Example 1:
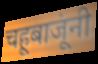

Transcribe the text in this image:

चहूबाजूंनी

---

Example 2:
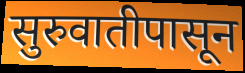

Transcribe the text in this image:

सुरुवातीपासून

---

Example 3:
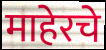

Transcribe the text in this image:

माहेरचे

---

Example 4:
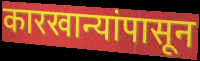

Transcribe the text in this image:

कारखान्यांपासून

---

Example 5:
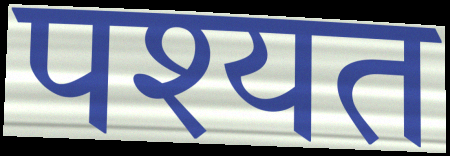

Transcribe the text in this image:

पश्यत